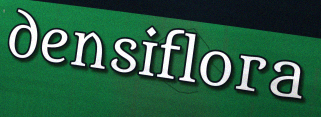
densiflora